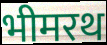
भीमरथ